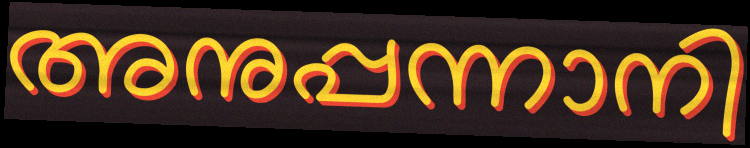
അനുപ്പന്നാനി